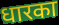
धारका